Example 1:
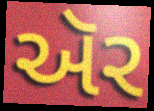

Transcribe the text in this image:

ઍર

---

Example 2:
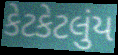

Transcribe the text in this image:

કેટકેટલુંય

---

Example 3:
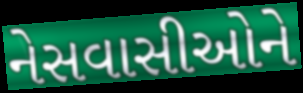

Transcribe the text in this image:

નેસવાસીઓને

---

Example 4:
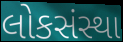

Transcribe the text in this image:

લોકસંસ્થા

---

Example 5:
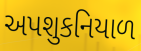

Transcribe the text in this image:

અપશુકનિયાળ